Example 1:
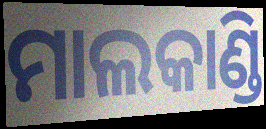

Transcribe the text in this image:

ମାଲକାଣ୍ଡି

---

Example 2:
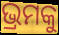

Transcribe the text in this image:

ଭ୍ରମକୁ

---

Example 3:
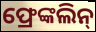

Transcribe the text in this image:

ଫ୍ରେଙ୍କଲିନ୍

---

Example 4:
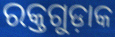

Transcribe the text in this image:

ରକ୍ତଗୁଡ଼ାକ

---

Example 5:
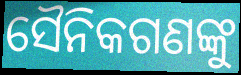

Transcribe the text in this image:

ସୈନିକଗଣଙ୍କୁ